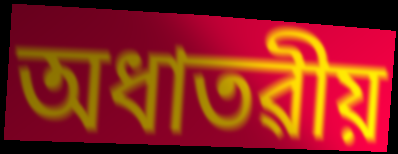
অধাতৱীয়